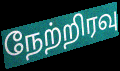
நேற்றிரவு